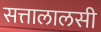
सत्तालालसी